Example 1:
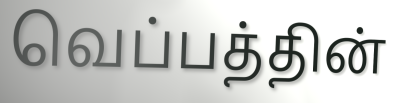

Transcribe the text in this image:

வெப்பத்தின்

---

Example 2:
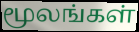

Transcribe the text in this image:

மூலங்கள்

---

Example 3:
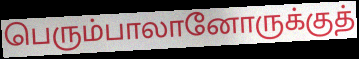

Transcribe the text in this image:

பெரும்பாலானோருக்குத்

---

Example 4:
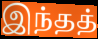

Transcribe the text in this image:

இந்தத்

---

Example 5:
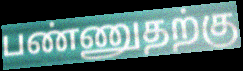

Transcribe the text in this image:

பண்ணுதற்கு